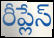
రీప్లేస్